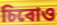
চিবোও